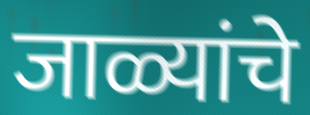
जाळ्यांचे